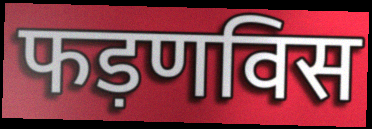
फड़णविस